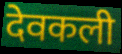
देवकली